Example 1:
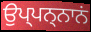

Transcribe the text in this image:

ਉਪ੍ਪਨ੍ਨਾਨਂ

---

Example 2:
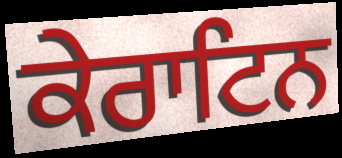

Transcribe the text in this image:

ਕੇਰਾਟਿਨ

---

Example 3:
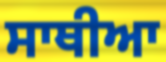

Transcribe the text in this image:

ਸਾਥੀਆ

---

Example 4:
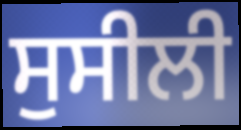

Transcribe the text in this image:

ਸੁਸੀਲੀ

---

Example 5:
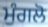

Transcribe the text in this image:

ਮੁੰਗਲੋ